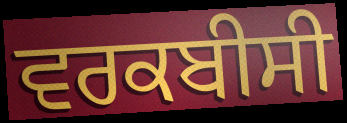
ਵਰਕਬੀਸੀ